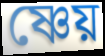
ষ্ণেয়